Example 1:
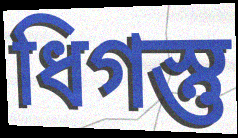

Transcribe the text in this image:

ধিগস্তু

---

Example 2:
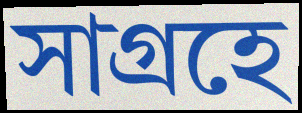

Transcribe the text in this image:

সাগ্রহে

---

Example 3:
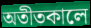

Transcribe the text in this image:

অতীতকালে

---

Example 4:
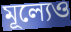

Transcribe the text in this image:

মূল্যেও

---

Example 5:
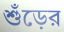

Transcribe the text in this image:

শুঁড়ের